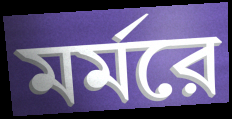
মর্মরে